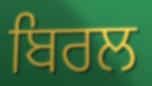
ਬਿਰਲ